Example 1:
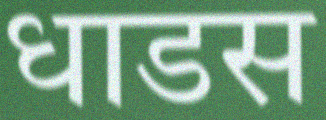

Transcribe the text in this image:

धाडस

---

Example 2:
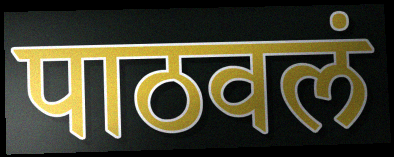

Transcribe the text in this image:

पाठवलं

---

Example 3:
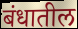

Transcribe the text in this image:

बंधातील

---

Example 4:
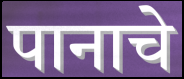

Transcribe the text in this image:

पानाचे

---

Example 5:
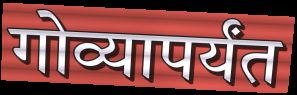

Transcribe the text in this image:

गोव्यापर्यंत